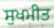
ਸੁਖਮੀਤ